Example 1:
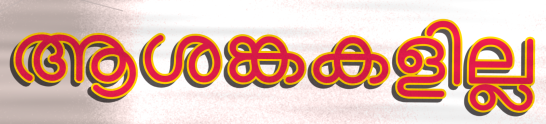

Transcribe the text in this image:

ആശങ്കകളില്ല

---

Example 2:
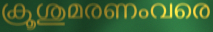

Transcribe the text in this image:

ക്രൂശുമരണംവരെ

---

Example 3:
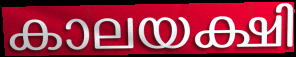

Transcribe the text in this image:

കാലയക്ഷി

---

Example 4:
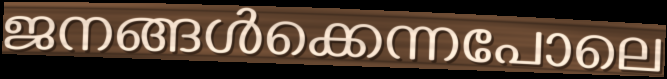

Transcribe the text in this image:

ജനങ്ങൾക്കെന്നപോലെ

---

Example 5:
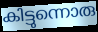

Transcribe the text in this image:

കിട്ടുന്നൊരു